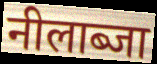
नीलाब्जा